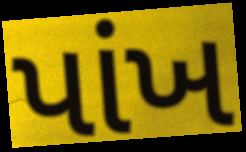
પાંખ